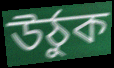
উঠুক